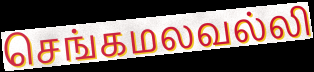
செங்கமலவல்லி